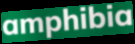
amphibia